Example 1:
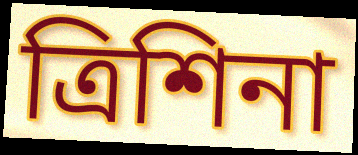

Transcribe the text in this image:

ত্রিশিনা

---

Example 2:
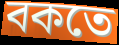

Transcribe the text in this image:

বকতে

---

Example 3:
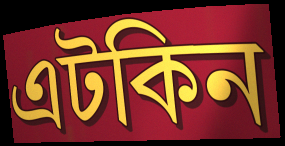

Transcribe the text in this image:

এটকিন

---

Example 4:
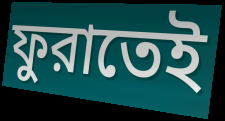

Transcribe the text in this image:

ফুরাতেই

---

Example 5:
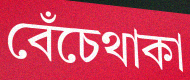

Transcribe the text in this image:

বেঁচেথাকা